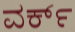
ವರ್ಕ್